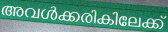
അവൾക്കരികിലേക്ക്